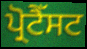
ਪ੍ਰੋਟੈੱਸਟ